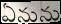
ఏనును